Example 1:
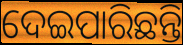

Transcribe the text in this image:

ଦେଇପାରିଛନ୍ତି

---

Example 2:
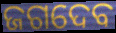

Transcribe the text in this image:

ଜଗଦେବ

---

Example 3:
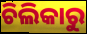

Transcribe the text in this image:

ଚିଲିକାରୁ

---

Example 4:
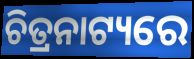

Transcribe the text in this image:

ଚିତ୍ରନାଟ୍ୟରେ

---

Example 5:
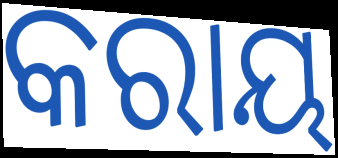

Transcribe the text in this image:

କରାୟ